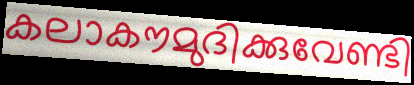
കലാകൗമുദിക്കുവേണ്ടി